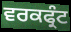
ਵਰਕਫ੍ਰੰਟ